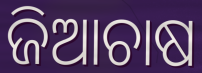
ଜିଆଚାଷ